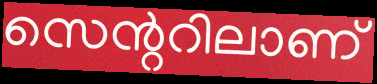
സെന്ററിലാണ്